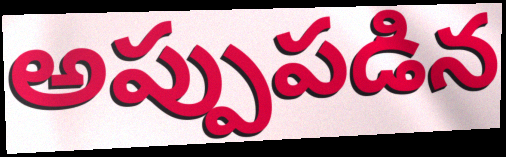
అప్పుపడిన